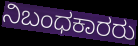
ನಿಬಂಧಕಾರರು